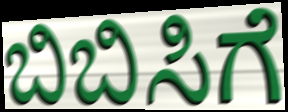
ಬಿಬಿಸಿಗೆ